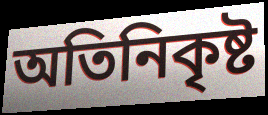
অতিনিকৃষ্ট